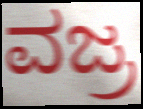
ವಜ್ರ